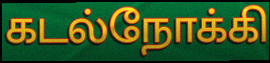
கடல்நோக்கி